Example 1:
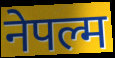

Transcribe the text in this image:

नेपल्म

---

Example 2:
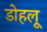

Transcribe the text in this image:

डोहलू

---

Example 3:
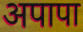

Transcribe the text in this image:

अपापा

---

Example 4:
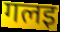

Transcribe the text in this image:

गलइ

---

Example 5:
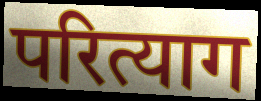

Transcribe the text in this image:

परित्याग